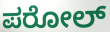
ಪರೋಲ್